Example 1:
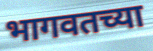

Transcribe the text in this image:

भागवतच्या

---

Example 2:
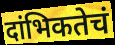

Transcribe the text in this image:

दांभिकतेचं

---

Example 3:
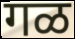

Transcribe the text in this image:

गळ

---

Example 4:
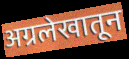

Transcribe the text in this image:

अग्रलेखातून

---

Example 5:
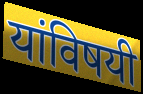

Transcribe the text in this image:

यांविषयी